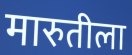
मारुतीला